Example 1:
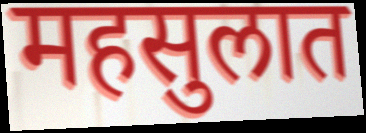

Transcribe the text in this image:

महसुलात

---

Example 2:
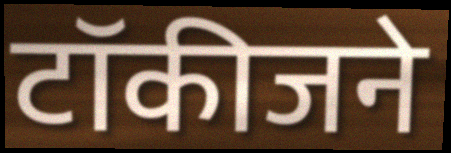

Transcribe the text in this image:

टॉकीजने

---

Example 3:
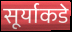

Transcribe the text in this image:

सूर्याकडे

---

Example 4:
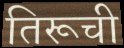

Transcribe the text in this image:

तिरूची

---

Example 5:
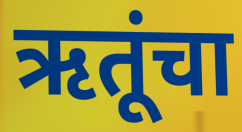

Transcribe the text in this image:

ऋतूंचा